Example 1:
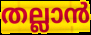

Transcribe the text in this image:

തല്ലാൻ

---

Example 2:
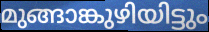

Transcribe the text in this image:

മുങ്ങാങ്കുഴിയിട്ടും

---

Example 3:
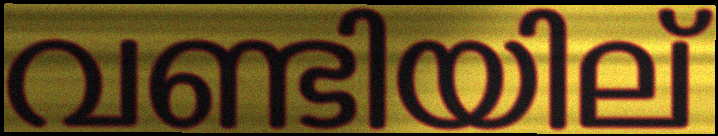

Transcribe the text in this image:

വണ്ടിയില്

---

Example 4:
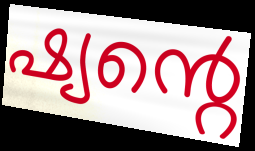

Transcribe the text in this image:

ഷ്യന്റെ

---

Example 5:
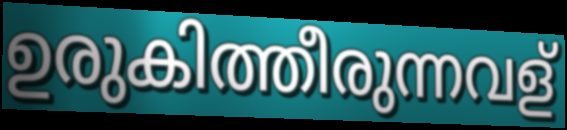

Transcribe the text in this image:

ഉരുകിത്തീരുന്നവള്